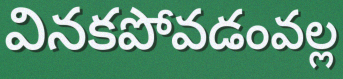
వినకపోవడంవల్ల